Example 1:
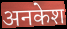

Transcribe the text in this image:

अनकेश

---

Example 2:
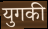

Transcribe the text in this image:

युगकी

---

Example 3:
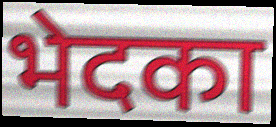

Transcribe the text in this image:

भेदका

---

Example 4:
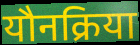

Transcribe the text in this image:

यौनक्रिया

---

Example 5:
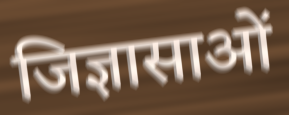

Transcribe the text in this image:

जिज्ञासाओं